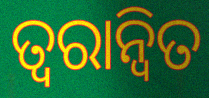
ତ୍ୱରାନ୍ଵିତ